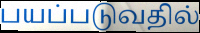
பயப்படுவதில்